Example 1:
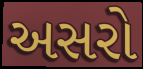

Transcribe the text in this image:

અસરો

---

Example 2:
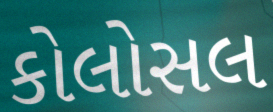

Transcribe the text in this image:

કોલોસલ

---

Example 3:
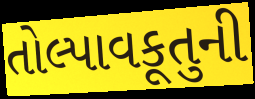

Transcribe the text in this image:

તોલ્પાવકૂતુની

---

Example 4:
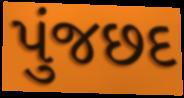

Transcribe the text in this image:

પુંજછદ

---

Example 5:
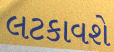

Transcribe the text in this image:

લટકાવશે